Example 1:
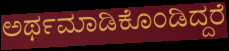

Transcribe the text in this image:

ಅರ್ಥಮಾಡಿಕೊಂಡಿದ್ದರೆ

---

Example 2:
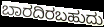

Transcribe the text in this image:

ಬಾರದಿರಬಹುದು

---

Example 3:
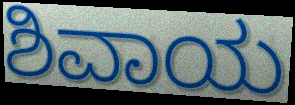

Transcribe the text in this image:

ಶಿವಾಯ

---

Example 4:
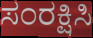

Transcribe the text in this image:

ಸಂರಕ್ಷಿಸಿ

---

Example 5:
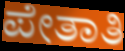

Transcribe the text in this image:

ಪೇತಾತಿ